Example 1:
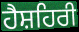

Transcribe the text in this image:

ਹੈਸ਼ਹਿਰੀ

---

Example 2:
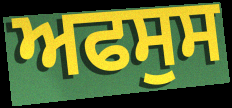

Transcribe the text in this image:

ਅਫਸੁਸ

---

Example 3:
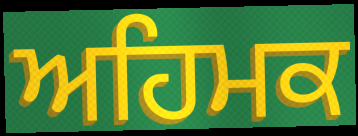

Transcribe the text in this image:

ਅਹਿਮਕ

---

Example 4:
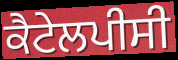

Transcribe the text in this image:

ਕੈਟੇਲਪੀਸੀ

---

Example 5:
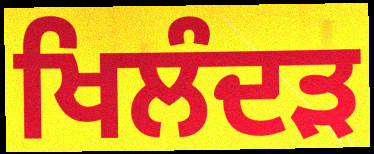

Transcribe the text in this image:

ਖਿਲੰਦੜ